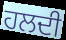
ਹਲਦੀ